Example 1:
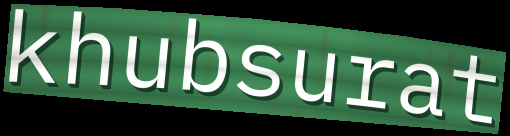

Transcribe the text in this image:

khubsurat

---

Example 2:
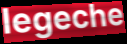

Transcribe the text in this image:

legeche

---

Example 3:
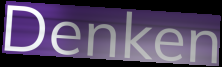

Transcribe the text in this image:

Denken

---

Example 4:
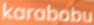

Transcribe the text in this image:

karababu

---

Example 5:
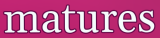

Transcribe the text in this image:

matures